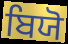
ਬਿਯੋ